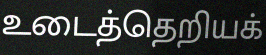
உடைத்தெறியக்